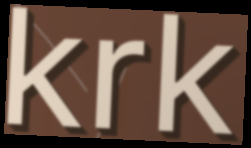
krk